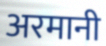
अरमानी